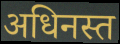
अधिनस्त